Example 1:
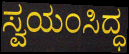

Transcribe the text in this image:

ಸ್ವಯಂಸಿದ್ಧ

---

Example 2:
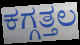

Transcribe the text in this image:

ಕಗ್ಗತ್ತಲ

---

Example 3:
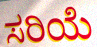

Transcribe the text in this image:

ಸರಿಯೆ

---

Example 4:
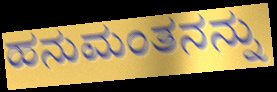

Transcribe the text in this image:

ಹನುಮಂತನನ್ನು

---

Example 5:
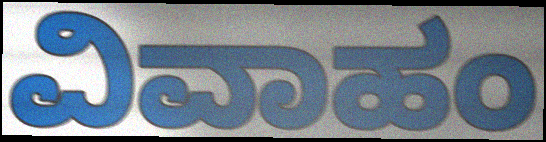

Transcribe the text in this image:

ವಿವಾಹಂ